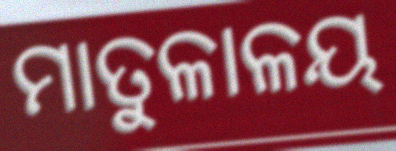
ମାତୁଳାଳୟ